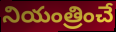
నియంత్రించే